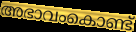
അഭാവംകൊണ്ട്